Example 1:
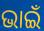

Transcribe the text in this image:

ଭାଇଁ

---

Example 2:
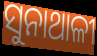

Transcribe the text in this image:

ସୁନାଥାଳୀ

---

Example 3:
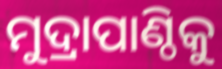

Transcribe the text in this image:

ମୁଦ୍ରାପାଣ୍ଠିକୁ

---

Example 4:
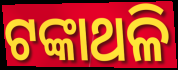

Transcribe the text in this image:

ଟଙ୍କାଥଳି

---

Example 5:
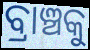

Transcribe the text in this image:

ବ୍ରାଞ୍ଚକୁ